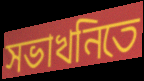
সভাখনিতে